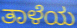
ತಾಳೆಯ